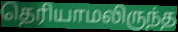
தெரியாமலிருந்த